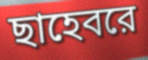
ছাহেবরে